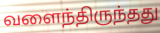
வளைந்திருந்தது